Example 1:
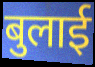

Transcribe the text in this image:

बुलाई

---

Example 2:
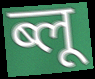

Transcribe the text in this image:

ब्लू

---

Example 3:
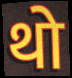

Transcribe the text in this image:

थो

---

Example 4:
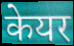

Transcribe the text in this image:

केयर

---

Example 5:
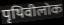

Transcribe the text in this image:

पृथिवीलोक